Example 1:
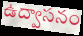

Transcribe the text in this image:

ఉద్వాసనం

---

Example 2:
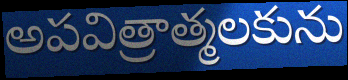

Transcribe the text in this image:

అపవిత్రాత్మలకును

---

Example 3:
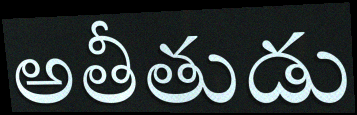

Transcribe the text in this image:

అతీతుడు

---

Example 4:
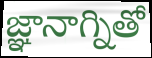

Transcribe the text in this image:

జ్ఞానాగ్నితో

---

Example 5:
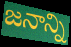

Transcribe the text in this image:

జనాన్ని